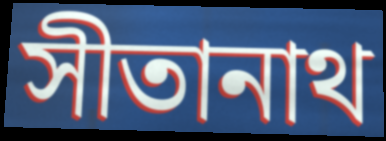
সীতানাথ